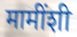
मामींशी